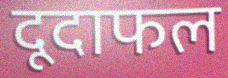
दूदाफल